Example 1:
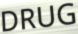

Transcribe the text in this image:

DRUG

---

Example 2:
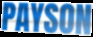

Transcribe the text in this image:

PAYSON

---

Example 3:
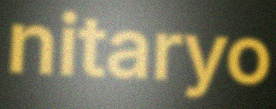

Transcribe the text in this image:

nitaryo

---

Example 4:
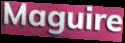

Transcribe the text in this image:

Maguire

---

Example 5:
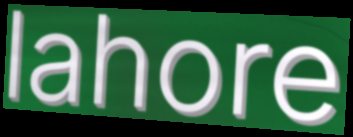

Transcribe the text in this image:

lahore